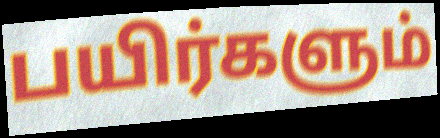
பயிர்களும்